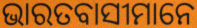
ଭାରତବାସୀମାନେ